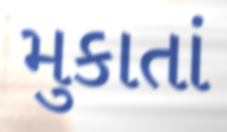
મુકાતાં